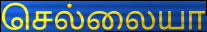
செல்லையா